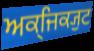
ਅਕ੍ਜਿਕ੍ਯੁਟ